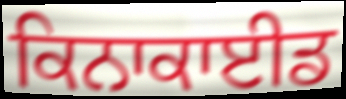
ਕਿਨਾਕਾਈਡ